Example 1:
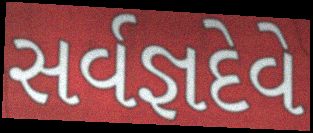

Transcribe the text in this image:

સર્વજ્ઞદેવે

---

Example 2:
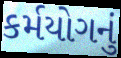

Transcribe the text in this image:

કર્મયોગનું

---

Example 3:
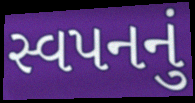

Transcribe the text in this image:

સ્વપનનું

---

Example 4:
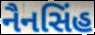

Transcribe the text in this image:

નૈનસિંહ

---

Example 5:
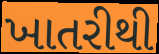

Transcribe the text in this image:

ખાતરીથી